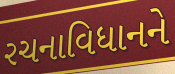
રચનાવિધાનને